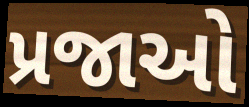
પ્રજાઓ